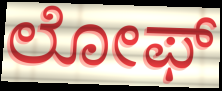
ಲೋಫ್